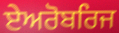
ਏਅਰੋਬਰਿਜ